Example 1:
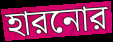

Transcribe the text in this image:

হারনোর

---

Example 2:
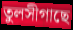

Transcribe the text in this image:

তুলসীগাছে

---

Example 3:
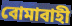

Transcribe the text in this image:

বোমাবাহী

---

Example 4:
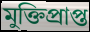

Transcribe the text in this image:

মুক্তিপ্রাপ্ত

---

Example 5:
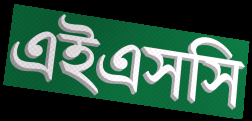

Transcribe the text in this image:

এইএসসি